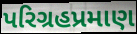
પરિગ્રહપ્રમાણ